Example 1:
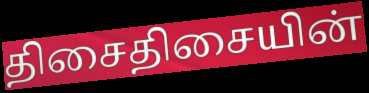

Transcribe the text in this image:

திசைதிசையின்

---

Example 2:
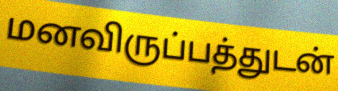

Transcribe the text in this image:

மனவிருப்பத்துடன்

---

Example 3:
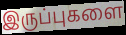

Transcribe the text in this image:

இருப்புகளை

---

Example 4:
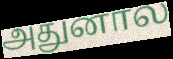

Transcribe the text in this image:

அதுனால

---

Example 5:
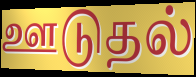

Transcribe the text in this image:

ஊடுதல்